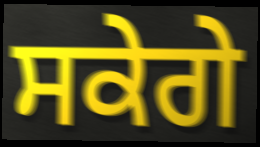
ਸਕੇਗੇ